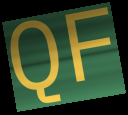
QF